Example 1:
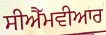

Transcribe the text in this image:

ਸੀਐੱਮਵੀਆਰ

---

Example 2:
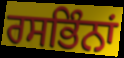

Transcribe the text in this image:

ਰਸਭਿੰਨਾਂ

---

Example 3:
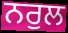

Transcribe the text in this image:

ਨਰੁਲ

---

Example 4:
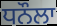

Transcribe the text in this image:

ਧਨੌਲਾ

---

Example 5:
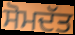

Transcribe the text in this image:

ਸੋਮਦੱਤ